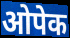
ओपेक